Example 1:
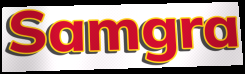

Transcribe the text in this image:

Samgra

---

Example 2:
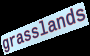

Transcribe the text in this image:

grasslands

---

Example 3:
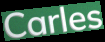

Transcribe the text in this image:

Carles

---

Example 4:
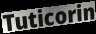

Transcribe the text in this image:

Tuticorin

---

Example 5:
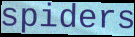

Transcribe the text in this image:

spiders